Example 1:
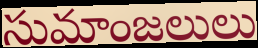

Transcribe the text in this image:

సుమాంజలులు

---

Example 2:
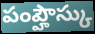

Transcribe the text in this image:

పంప్హౌస్కు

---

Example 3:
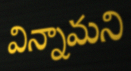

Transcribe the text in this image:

విన్నామని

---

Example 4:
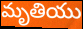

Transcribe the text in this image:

మృతియు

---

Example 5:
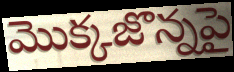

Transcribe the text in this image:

మొక్కజొన్నపై